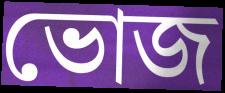
ভোজ